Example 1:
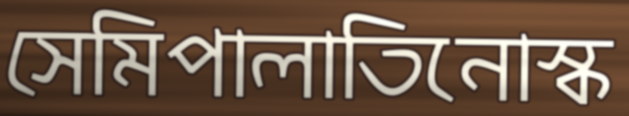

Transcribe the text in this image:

সেমিপালাতিনোস্ক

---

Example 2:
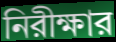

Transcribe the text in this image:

নিরীক্ষার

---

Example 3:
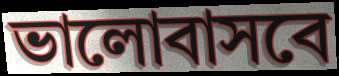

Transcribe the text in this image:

ভালোবাসবে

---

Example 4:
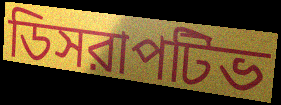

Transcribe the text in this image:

ডিসরাপটিভ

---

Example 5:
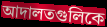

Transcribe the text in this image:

আদালতগুলিকে